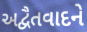
અદ્વૈતવાદને